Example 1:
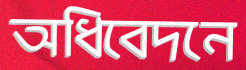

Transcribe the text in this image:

অধিবেদনে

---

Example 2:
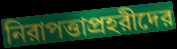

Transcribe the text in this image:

নিরাপত্তাপ্রহরীদের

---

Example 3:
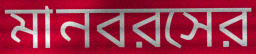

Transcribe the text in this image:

মানবরসের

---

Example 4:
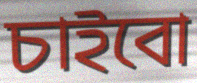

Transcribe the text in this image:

চাইবো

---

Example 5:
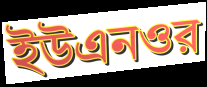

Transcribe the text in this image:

ইউএনওর